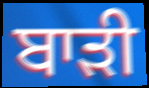
ਬਾੜੀ